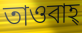
তাওবাহ্